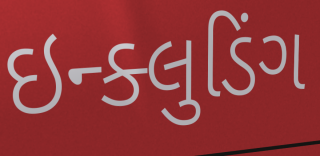
ઇન્ક્લુડિંગ